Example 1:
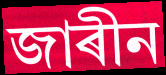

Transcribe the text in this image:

জাৰীন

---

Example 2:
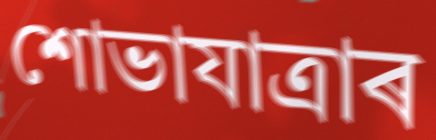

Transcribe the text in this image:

শোভাযাত্ৰাৰ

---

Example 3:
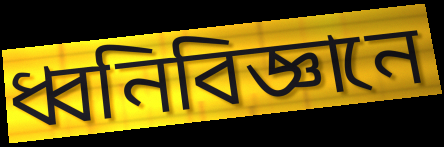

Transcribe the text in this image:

ধ্বনিবিজ্ঞানে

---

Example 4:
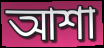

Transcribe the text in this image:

আশা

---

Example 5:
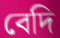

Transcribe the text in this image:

বেদি